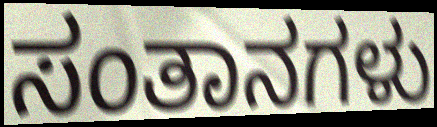
ಸಂತಾನಗಳು